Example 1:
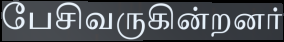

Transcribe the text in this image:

பேசிவருகின்றனர்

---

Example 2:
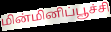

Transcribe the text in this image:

மின்மினிப்பூச்சி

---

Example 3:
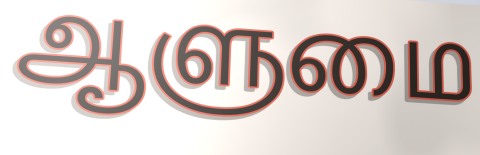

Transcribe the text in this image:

ஆளுமை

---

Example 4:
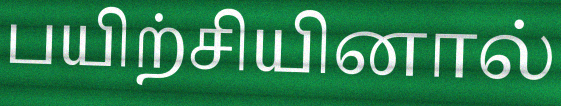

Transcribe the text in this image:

பயிற்சியினால்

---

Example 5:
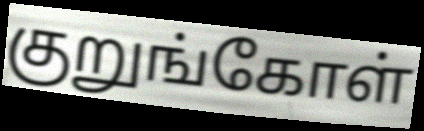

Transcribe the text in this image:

குறுங்கோள்